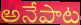
అనేపాట